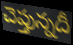
చెప్తున్నదీ